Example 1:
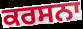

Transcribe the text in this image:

ਕਰਸਨਾ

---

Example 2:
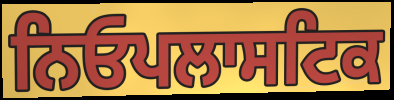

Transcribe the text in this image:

ਨਿਓਪਲਾਸਟਿਕ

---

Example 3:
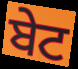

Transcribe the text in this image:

ਬੇਟ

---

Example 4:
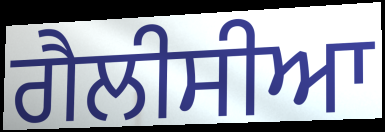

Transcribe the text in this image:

ਗੈਲੀਸੀਆ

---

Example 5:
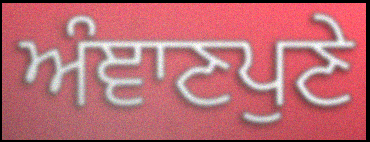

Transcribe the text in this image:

ਅੰਞਾਣਪੁਣੇ